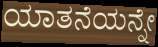
ಯಾತನೆಯನ್ನೇ